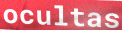
ocultas